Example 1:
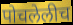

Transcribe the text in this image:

पोचलेलीच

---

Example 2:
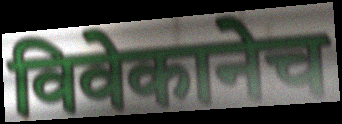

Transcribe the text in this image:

विवेकानेच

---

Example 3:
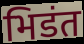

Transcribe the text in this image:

भिडंत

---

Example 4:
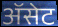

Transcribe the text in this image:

ॲसेट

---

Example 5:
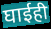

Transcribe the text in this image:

घाईही